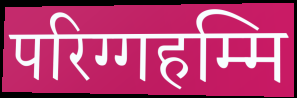
परिग्गहम्मि